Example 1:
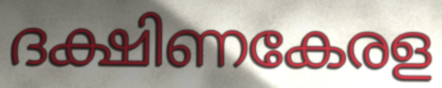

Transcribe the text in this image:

ദക്ഷിണകേരള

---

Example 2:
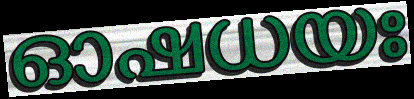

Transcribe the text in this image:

ഓഷധയഃ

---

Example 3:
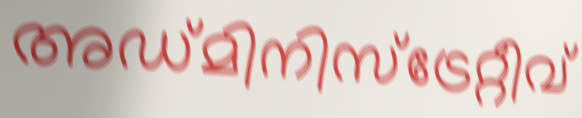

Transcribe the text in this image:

അഡ്മിനിസ്ട്രേറ്റീവ്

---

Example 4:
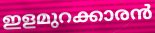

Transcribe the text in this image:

ഇളമുറക്കാരൻ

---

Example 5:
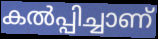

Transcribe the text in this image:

കൽപ്പിച്ചാണ്